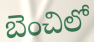
బెంచిలో